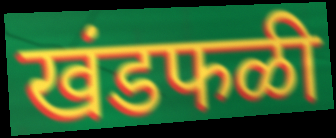
खंडफळी